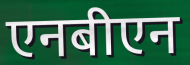
एनबीएन